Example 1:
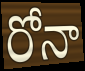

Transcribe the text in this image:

రోనా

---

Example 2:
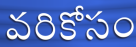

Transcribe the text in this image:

వరికోసం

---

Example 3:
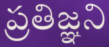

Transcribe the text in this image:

ప్రతిజ్ఞని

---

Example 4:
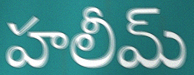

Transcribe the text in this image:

హలీమ్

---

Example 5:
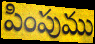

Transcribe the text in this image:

పింపుము